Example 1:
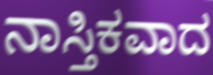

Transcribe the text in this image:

ನಾಸ್ತಿಕವಾದ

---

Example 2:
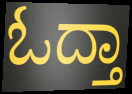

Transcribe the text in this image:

ಓದ್ತಾ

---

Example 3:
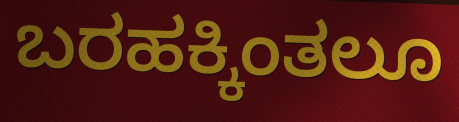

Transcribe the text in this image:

ಬರಹಕ್ಕಿಂತಲೂ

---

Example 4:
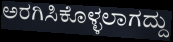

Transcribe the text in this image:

ಅರಗಿಸಿಕೊಳ್ಳಲಾಗದ್ದು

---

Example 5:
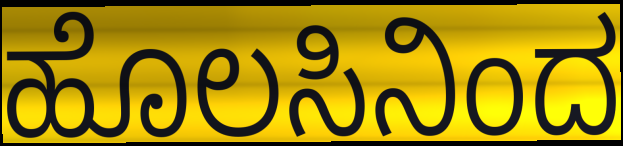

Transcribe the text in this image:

ಹೊಲಸಿನಿಂದ